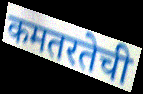
कमतरतेची